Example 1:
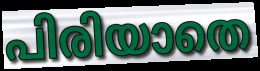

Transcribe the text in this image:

പിരിയാതെ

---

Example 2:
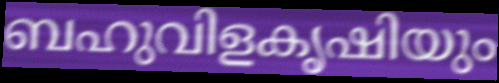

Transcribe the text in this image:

ബഹുവിളകൃഷിയും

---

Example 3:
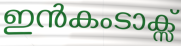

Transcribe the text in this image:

ഇൻകംടാക്സ്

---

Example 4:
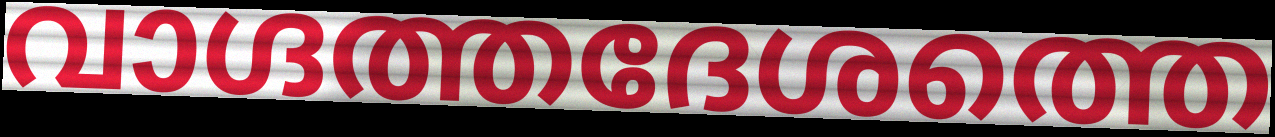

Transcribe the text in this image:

വാഗ്ദത്തദേശത്തെ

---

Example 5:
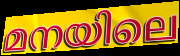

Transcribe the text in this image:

മനയിലെ